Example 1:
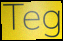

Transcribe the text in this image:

Teg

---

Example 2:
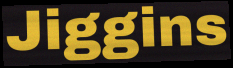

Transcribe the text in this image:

Jiggins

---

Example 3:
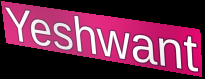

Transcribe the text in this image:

Yeshwant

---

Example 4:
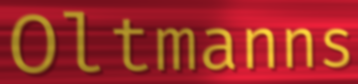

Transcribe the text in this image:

Oltmanns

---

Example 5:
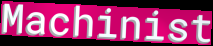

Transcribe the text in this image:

Machinist